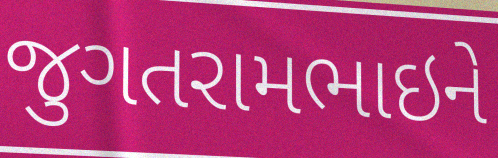
જુગતરામભાઇને